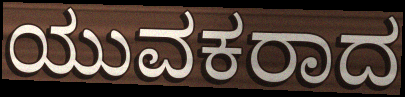
ಯುವಕರಾದ